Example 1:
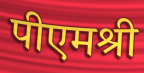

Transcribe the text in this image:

पीएमश्री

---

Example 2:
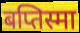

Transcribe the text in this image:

बप्तिस्मा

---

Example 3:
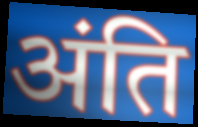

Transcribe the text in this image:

अंति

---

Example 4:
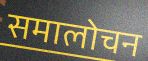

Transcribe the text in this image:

समालोचन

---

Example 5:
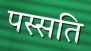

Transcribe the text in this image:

पस्सति